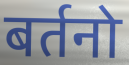
बर्तनो